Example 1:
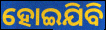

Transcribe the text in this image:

ହୋଇଯିବି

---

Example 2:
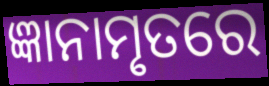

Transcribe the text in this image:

ଜ୍ଞାନାମୃତରେ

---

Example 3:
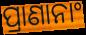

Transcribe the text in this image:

ପ୍ରାଣାନାଂ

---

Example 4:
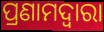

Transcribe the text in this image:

ପ୍ରଣାମଦ୍ୱାରା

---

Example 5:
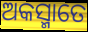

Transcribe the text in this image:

ଅକସ୍ମାତେ